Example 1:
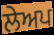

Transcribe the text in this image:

ਲੇਅਪ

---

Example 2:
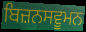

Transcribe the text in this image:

ਬਿਜ਼ਨਸਵੂਮਨ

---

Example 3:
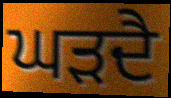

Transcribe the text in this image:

ਘੜਦੈ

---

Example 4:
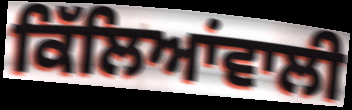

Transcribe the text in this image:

ਕਿੱਲਿਆਂਵਾਲੀ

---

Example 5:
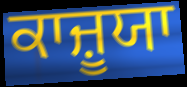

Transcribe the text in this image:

ਕਾਜ਼ੂਯਾ